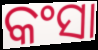
କଂସା